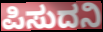
ಪಿಸುದನಿ